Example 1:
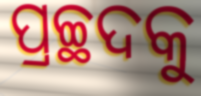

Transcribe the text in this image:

ପ୍ରଚ୍ଛଦକୁ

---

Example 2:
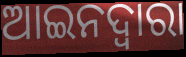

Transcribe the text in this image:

ଆଇନଦ୍ଵାରା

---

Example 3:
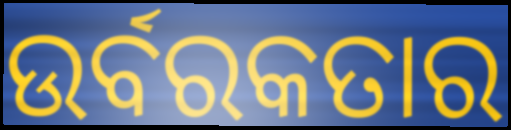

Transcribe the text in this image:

ଉର୍ବରକତାର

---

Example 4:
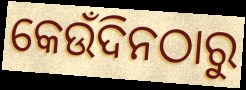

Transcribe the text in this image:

କେଉଁଦିନଠାରୁ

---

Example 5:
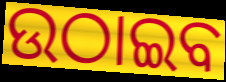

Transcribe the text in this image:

ଉଠାଇବ